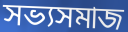
সভ্যসমাজ